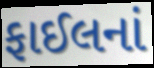
ફાઈલનાં